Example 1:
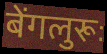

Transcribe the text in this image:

बेंगलुरूः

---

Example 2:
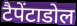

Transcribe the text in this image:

टैपेंटाडोल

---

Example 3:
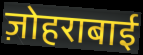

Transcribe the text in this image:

ज़ोहराबाई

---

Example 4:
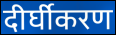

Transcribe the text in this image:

दीर्घीकरण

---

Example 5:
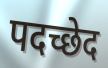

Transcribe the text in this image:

पदच्छेद